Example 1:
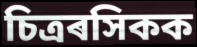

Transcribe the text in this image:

চিত্ৰৰসিকক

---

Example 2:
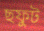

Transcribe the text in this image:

ছফুট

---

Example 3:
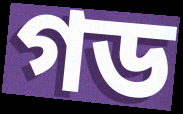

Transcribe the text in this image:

গড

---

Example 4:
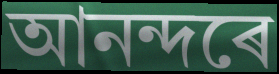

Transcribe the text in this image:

আনন্দৰে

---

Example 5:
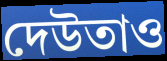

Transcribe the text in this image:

দেউতাও